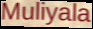
Muliyala